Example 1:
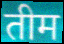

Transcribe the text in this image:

तीम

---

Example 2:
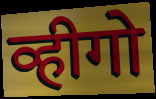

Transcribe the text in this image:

व्हीगो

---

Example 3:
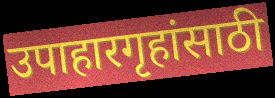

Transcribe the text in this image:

उपाहारगृहांसाठी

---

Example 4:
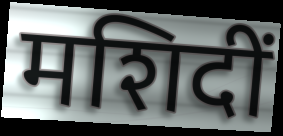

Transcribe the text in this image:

मशिदीं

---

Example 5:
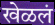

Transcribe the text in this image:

खेळलं